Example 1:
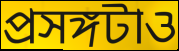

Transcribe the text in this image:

প্রসঙ্গটাও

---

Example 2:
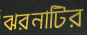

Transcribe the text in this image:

ঝরনাটির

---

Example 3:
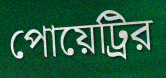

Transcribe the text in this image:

পোয়েট্রির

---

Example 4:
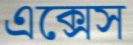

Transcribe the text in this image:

এক্সেস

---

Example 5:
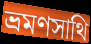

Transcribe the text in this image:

ভ্রমণসাথি